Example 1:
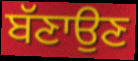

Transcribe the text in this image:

ਬੱਣਾਉਣ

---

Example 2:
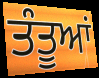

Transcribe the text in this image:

ਤੰਤੂਆਂ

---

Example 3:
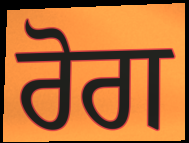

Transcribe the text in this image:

ਰੋਗ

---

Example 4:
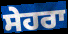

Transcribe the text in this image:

ਸੇਹਰਾ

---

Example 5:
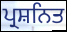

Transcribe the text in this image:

ਪ੍ਰਸ਼ਨਿਤ